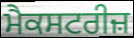
ਮੈਕਸਟਰੀਜ਼